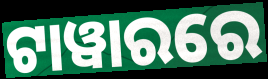
ଟାୱାରରେ